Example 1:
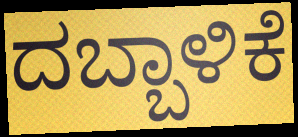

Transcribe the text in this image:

ದಬ್ಬಾಳಿಕೆ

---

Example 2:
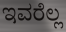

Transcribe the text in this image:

ಇವರೆಲ್ಲ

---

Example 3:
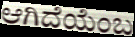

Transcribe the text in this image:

ಆಗಿದೆಯೆಂಬ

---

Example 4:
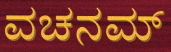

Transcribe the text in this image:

ವಚನಮ್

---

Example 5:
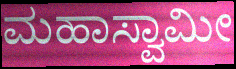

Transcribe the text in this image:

ಮಹಾಸ್ವಾಮೀ